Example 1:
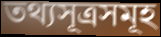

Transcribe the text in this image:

তথ্যসূত্ৰসমূহ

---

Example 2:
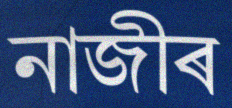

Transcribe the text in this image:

নাজীৰ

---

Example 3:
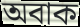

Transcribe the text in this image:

অবাক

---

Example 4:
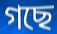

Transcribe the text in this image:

গছে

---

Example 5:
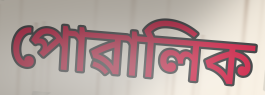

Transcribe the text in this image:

পোৱালিক